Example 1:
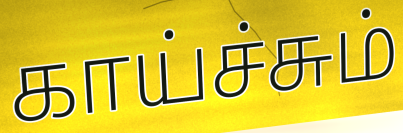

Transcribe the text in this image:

காய்ச்சும்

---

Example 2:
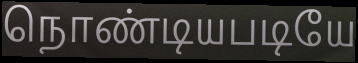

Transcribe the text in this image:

நொண்டியபடியே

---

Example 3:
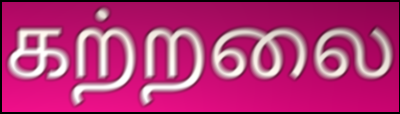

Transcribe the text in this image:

கற்றலை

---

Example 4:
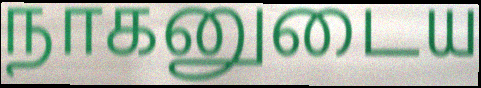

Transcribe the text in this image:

நாகனுடைய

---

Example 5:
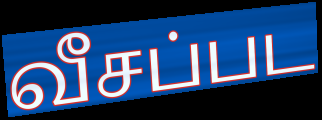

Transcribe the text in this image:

வீசப்பட